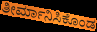
ತೀರ್ಮಾನಿಸಿಕೊಂಡ